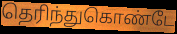
தெரிந்துகொண்டே